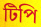
টিপি